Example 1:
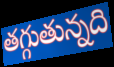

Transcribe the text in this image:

తగ్గుతున్నది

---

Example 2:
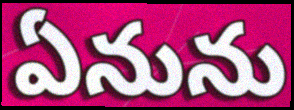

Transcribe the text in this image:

ఏనును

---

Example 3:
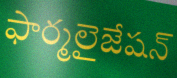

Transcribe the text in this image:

ఫార్మలైజేషన్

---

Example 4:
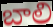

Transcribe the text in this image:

బాలి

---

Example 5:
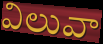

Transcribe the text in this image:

విలువా